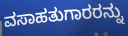
ವಸಾಹತುಗಾರರನ್ನು